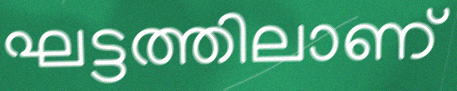
ഘട്ടത്തിലാണ്